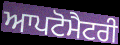
ਆਪਟੋਮੈਟਰੀ